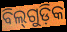
ବିଲ୍‌ଗୁଡ଼ିକ